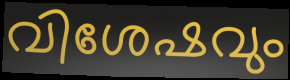
വിശേഷവും